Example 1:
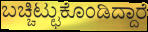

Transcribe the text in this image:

ಬಚ್ಚಿಟ್ಟುಕೊಂಡಿದ್ದಾರೆ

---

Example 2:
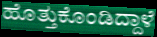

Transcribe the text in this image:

ಹೊತ್ತುಕೊಂಡಿದ್ದಾಳೆ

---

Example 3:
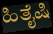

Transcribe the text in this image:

ಹಿತೈಷಿ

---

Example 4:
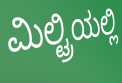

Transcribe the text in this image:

ಮಿಲ್ಟ್ರಿಯಲ್ಲಿ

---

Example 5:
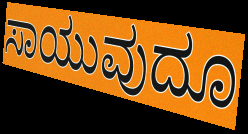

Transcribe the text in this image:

ಸಾಯುವುದೂ